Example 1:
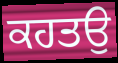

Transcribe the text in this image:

ਕਹਤਉ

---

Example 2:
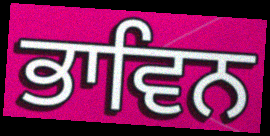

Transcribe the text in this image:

ਭਾਵਿਨ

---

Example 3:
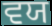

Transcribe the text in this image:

ਵਯ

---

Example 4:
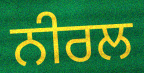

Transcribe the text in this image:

ਨੀਰਲ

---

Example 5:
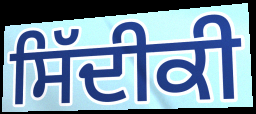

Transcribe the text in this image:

ਸਿੱਦੀਕੀ